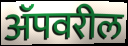
ॲपवरील